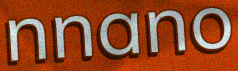
nnano